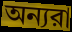
অন্যরা